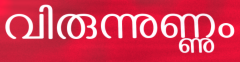
വിരുന്നുണ്ണും